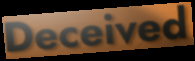
Deceived